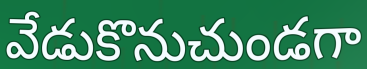
వేడుకొనుచుండగా